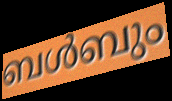
ബൾബും